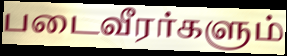
படைவீரர்களும்